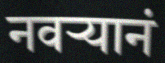
नवऱ्यानं